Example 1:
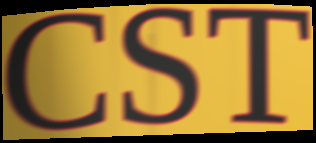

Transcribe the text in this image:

CST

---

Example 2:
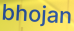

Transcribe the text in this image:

bhojan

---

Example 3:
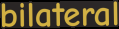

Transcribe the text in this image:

bilateral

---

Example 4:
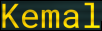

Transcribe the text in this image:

Kemal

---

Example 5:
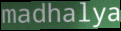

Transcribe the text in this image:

madhalya